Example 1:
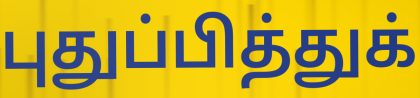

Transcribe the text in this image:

புதுப்பித்துக்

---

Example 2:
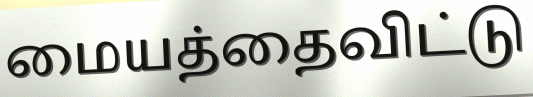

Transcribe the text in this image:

மையத்தைவிட்டு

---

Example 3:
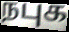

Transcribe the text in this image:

நபுக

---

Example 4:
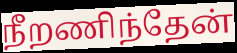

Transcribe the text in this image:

நீறணிந்தேன்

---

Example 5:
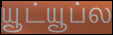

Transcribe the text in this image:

யூட்யூப்ல